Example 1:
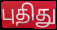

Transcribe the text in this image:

புதிது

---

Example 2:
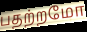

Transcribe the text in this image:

பதற்றமோ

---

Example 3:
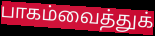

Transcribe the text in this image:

பாகம்வைத்துக்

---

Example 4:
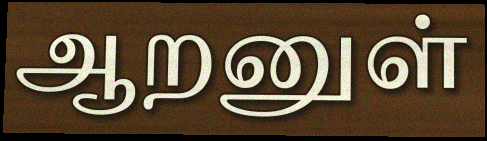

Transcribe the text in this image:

ஆறனுள்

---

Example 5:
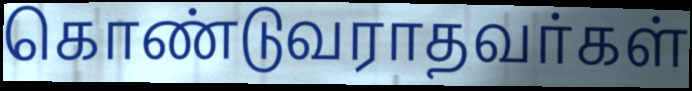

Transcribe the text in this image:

கொண்டுவராதவர்கள்